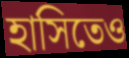
হাসিতেও